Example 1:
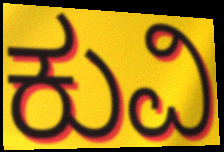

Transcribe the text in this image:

ಕುವಿ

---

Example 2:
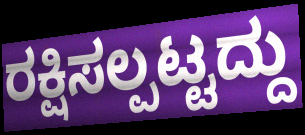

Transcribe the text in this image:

ರಕ್ಷಿಸಲ್ಪಟ್ಟದ್ದು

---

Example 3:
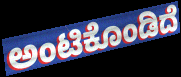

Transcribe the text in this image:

ಅಂಟಿಕೊಂಡಿದೆ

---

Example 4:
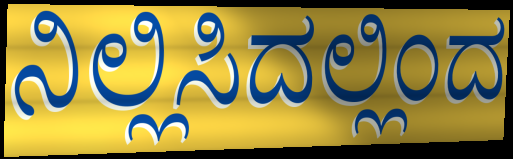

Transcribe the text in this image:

ನಿಲ್ಲಿಸಿದಲ್ಲಿಂದ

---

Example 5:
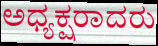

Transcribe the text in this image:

ಅಧ್ಯಕ್ಷರಾದರು